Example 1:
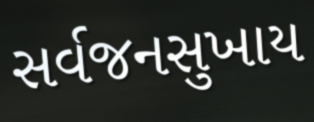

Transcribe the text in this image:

સર્વજનસુખાય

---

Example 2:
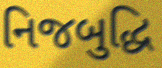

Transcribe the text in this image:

નિજબુદ્ધિ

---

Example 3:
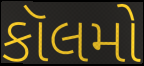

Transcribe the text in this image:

કૉલમો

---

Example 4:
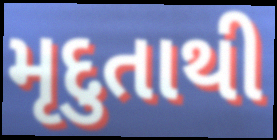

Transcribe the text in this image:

મૃદુતાથી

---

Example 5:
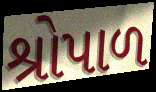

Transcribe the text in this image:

શ્રોપાળ